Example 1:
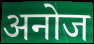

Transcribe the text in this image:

अनोज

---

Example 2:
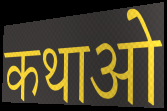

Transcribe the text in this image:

कथाओ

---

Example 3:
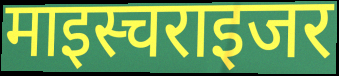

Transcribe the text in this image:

माइस्चराइजर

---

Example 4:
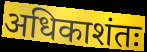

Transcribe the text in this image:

अधिकाशंतः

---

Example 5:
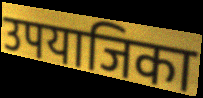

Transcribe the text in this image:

उपयाजिका